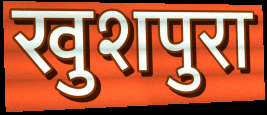
खुशपुरा